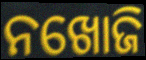
ନଖୋଜି